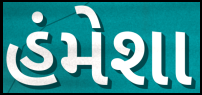
હંમેશા